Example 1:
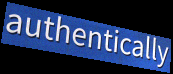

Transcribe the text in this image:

authentically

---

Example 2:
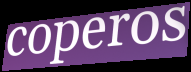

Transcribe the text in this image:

coperos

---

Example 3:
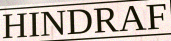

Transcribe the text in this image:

HINDRAF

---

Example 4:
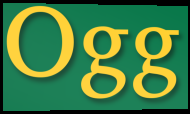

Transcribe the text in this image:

Ogg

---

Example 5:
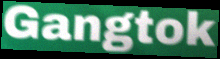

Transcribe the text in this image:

Gangtok